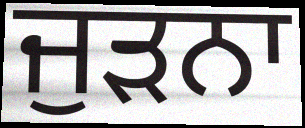
ਜੁੜਨਾ